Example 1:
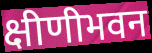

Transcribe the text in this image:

क्षीणीभवन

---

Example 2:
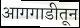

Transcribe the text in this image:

आगगाडीतून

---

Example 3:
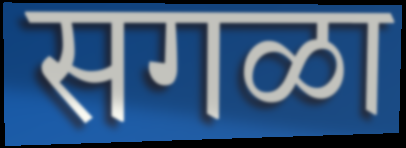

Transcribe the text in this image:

सगळा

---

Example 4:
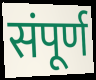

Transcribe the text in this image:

संपूर्ण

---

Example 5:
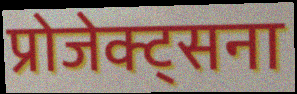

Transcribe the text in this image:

प्रोजेक्ट्सना